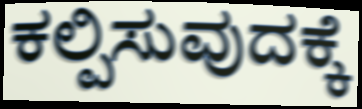
ಕಲ್ಪಿಸುವುದಕ್ಕೆ